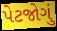
પેટજોગું